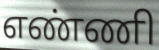
எண்ணி